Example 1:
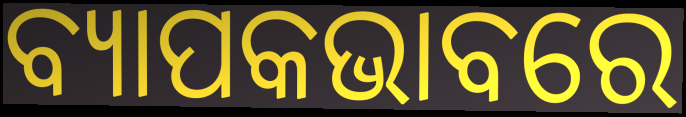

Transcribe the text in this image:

ବ୍ୟାପକଭାବରେ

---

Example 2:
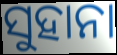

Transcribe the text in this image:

ସୁହାନା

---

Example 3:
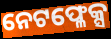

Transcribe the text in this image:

ନେଟଫ୍ଳେକ୍ସ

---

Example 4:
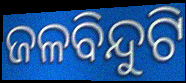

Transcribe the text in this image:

ଜଳବିନ୍ଦୁଟି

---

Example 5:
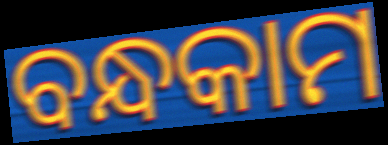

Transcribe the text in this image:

ବନ୍ଧକାମ